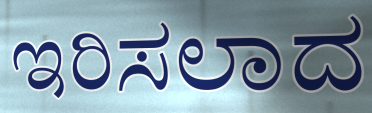
ಇರಿಸಲಾದ